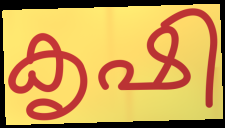
കൃഷി